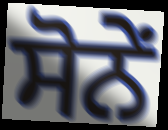
ਸੋਨੇਂ